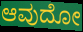
ಆವುದೋ